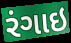
રંગાઇ